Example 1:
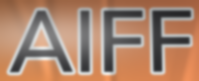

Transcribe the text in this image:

AIFF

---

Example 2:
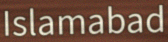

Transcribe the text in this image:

Islamabad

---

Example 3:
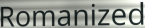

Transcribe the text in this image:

Romanized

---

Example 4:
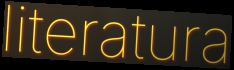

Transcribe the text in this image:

literatura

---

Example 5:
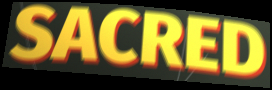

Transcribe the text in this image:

SACRED